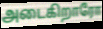
அடைகிறாரோ